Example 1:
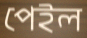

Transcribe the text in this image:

পেইল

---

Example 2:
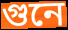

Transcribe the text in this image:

গুনে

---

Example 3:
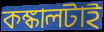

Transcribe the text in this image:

কঙ্কালটাই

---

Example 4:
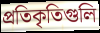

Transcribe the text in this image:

প্রতিকৃতিগুলি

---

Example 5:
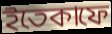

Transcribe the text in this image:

ইতেকাফে